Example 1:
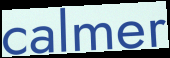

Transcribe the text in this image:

calmer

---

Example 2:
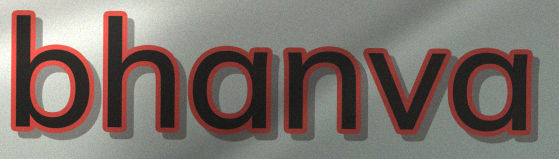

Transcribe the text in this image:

bhanva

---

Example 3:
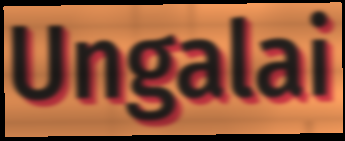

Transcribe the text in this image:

Ungalai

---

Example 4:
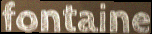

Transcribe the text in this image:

fontaine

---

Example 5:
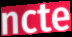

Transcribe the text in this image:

ncte